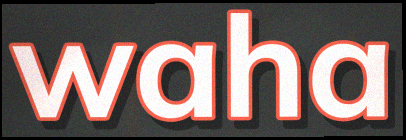
waha